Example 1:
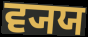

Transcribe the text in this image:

ਵ੍ਯਯ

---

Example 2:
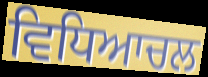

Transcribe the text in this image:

ਵਿਧਿਆਚਲ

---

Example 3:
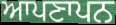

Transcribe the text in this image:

ਆਪਣਾਪਨ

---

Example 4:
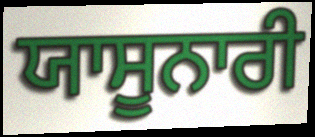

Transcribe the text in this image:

ਯਾਸੂਨਾਰੀ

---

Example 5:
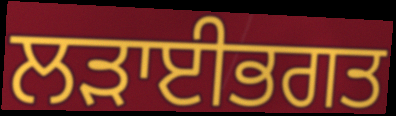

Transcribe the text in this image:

ਲੜਾਈਭਗਤ